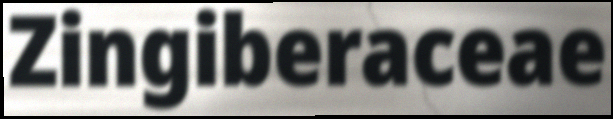
Zingiberaceae